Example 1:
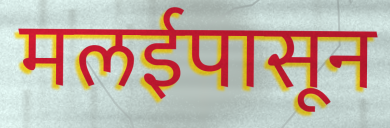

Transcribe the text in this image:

मलईपासून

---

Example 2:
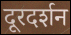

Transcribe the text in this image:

दूरदर्शन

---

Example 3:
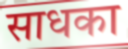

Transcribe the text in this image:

साधका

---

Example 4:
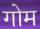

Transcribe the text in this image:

गोम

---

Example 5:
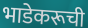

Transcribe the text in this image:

भाडेकरूची